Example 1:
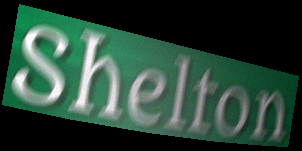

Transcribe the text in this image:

Shelton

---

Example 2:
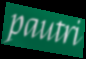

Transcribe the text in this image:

pautri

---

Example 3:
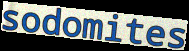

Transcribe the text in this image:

sodomites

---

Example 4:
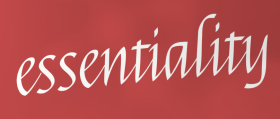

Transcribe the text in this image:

essentiality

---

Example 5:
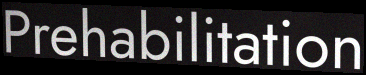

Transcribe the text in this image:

Prehabilitation